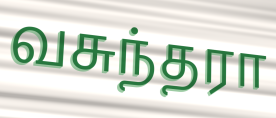
வசுந்தரா